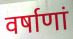
वर्षाणां